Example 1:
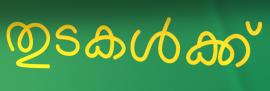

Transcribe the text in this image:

തുടകൾക്ക്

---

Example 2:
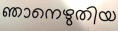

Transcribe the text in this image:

ഞാനെഴുതിയ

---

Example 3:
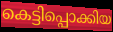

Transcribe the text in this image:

കെട്ടിപ്പൊക്കിയ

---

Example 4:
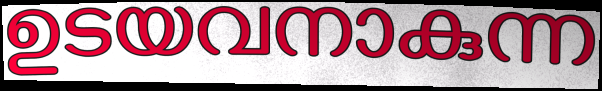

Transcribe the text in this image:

ഉടയവനാകുന്ന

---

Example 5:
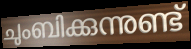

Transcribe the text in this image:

ചുംബിക്കുന്നുണ്ട്